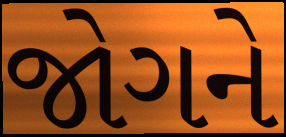
જોગને